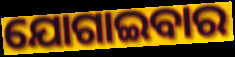
ଯୋଗାଇବାର